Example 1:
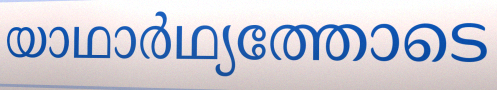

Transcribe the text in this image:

യാഥാർഥ്യത്തോടെ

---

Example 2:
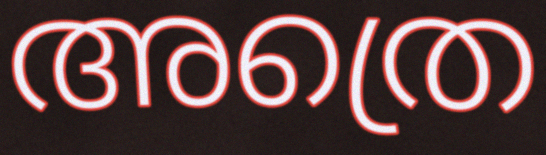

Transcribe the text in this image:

അത്രെ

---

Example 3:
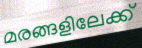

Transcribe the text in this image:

മരങ്ങളിലേക്ക്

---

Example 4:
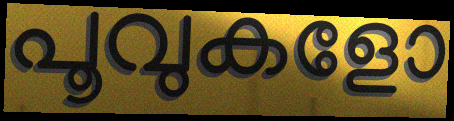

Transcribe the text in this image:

പൂവുകളോ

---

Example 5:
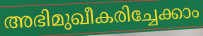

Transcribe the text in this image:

അഭിമുഖീകരിച്ചേക്കാം